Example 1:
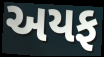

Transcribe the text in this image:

અયફ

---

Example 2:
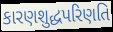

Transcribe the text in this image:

કારણશુદ્ધપરિણતિ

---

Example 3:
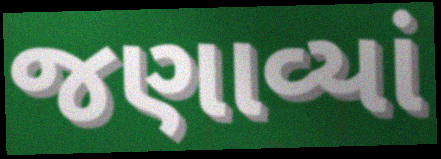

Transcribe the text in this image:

જણાવ્યાં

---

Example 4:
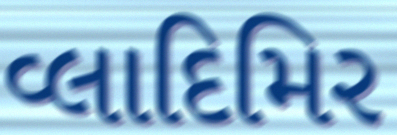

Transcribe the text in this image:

વ્લાદિમિર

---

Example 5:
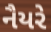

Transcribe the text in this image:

નૈયરે